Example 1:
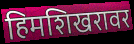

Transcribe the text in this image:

हिमशिखरावर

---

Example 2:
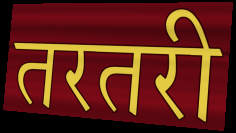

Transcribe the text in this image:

तरतरी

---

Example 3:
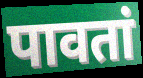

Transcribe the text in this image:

पावतां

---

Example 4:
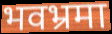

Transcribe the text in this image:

भवभ्रमा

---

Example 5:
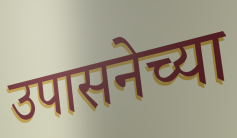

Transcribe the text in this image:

उपासनेच्या